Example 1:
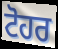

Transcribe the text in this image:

ਟੋਹਰ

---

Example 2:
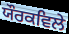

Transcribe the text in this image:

ਯੌਰਕਵਿਲੇ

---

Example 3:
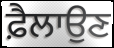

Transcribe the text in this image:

ਫ਼ੈਲਾਉਣ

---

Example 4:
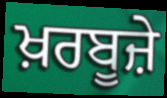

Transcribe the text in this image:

ਖ਼ਰਬੂਜ਼ੇ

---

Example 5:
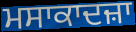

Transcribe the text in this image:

ਮਸਾਕਾਦਜ਼ਾ